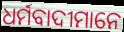
ଧର୍ମବାଦୀମାନେ